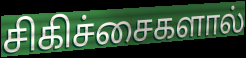
சிகிச்சைகளால்